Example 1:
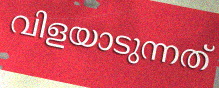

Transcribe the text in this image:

വിളയാടുന്നത്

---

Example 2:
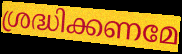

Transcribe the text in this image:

ശ്രദ്ധിക്കണമേ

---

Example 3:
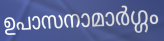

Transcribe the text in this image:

ഉപാസനാമാർഗ്ഗം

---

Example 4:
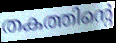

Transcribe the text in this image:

തകത്തിന്റെ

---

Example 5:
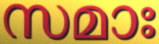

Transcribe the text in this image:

സമാഃ